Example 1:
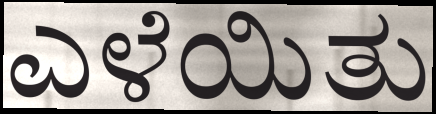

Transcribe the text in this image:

ಎಳೆಯಿತು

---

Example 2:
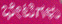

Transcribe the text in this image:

ಭೇಟಿಗಳು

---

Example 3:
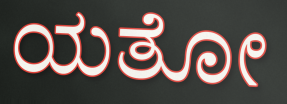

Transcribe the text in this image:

ಯತೋ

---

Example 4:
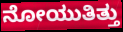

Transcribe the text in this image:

ನೋಯುತಿತ್ತು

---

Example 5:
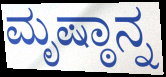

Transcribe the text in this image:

ಮೃಷ್ಠಾನ್ನ